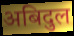
अबिदुल